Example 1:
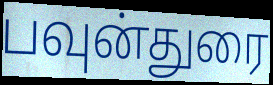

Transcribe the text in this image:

பவுன்துரை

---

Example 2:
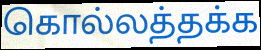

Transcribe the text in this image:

கொல்லத்தக்க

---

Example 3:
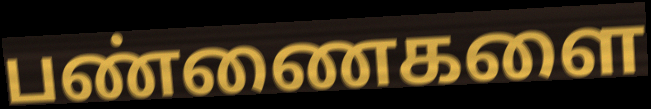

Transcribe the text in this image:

பண்ணைகளை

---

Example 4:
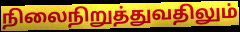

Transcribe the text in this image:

நிலைநிறுத்துவதிலும்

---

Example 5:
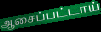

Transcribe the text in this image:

ஆசைப்பட்டாய்